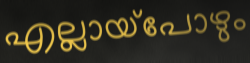
എല്ലായ്‌പോഴും